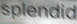
splendid